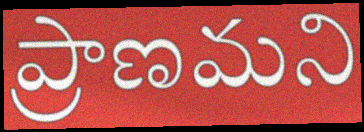
ప్రాణమని